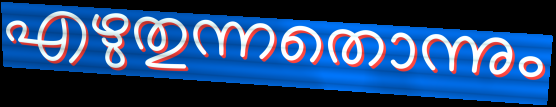
എഴുതുന്നതൊന്നും